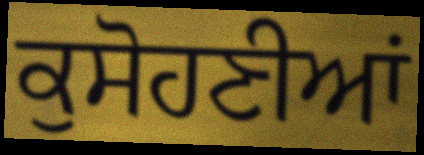
ਕੁਸੋਹਣੀਆਂ